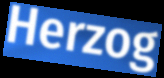
Herzog